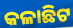
କଳାଛିଟ